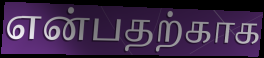
என்பதற்காக